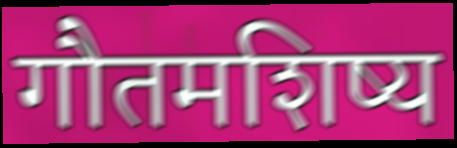
गौतमशिष्य